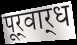
पूर्वार्ध